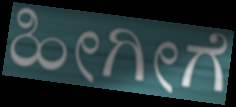
ಹೀಗೀಗೆ